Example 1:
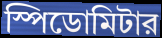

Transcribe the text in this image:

স্পিডোমিটার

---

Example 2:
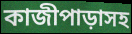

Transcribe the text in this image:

কাজীপাড়াসহ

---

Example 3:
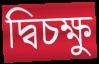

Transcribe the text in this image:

দ্বিচক্ষু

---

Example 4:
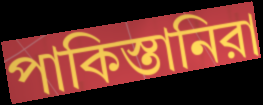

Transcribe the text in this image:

পাকিস্তানিরা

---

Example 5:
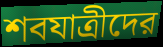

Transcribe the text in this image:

শবযাত্রীদের